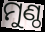
ମୁଣ୍ଠ